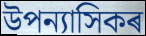
উপন্যাসিকৰ